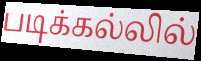
படிக்கல்லில்